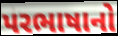
પરભાષાનો